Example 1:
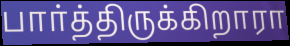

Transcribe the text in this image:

பார்த்திருக்கிறாரா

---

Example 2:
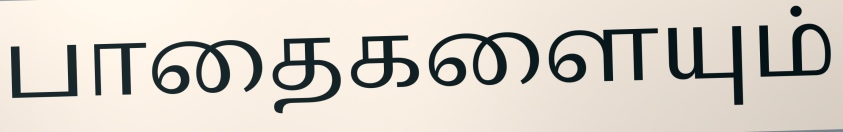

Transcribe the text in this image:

பாதைகளையும்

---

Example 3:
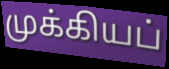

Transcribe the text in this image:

முக்கியப்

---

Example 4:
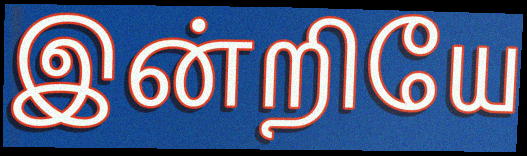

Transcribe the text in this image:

இன்றியே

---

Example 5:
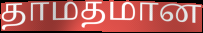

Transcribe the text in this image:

தாமதமான